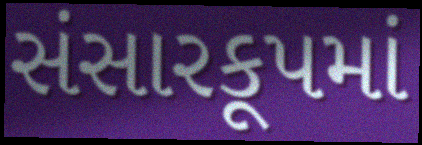
સંસારકૂપમાં